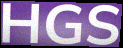
HGS